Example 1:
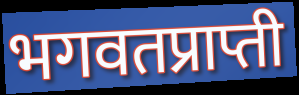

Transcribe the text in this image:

भगवतप्राप्ती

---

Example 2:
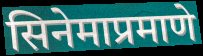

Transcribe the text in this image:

सिनेमाप्रमाणे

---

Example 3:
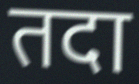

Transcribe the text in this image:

तदा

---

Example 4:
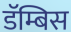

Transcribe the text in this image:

डॅम्बिस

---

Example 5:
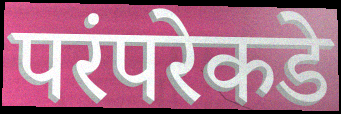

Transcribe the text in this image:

परंपरेकडे